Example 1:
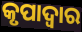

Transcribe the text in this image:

କୃପାଦ୍ଵାର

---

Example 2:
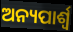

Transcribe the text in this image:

ଅନ୍ୟପାର୍ଶ୍ୱ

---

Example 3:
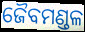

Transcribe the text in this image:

ଜୈବମଣ୍ଡଳ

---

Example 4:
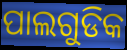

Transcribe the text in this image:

ପାଲଗୁଡିକ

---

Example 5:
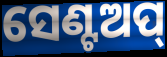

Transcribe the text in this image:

ସେଣ୍ଟଅପ୍